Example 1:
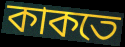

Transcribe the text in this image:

কাকতে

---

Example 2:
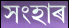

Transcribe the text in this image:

সংহাৰ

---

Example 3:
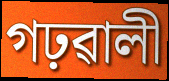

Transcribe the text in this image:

গঢ়ৱালী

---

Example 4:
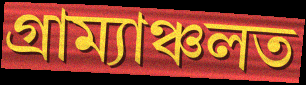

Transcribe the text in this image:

গ্ৰাম্যাঞ্চলত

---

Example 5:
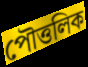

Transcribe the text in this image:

পৌত্তলিক